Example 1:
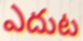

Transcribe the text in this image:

ఎదుట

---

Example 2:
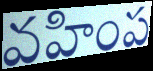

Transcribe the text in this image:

వహింప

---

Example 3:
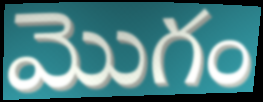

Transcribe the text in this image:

మొగం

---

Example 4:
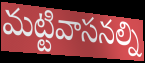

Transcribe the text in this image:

మట్టివాసనల్ని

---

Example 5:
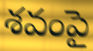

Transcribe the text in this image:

శవంపై